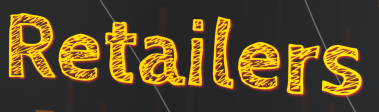
Retailers